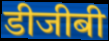
डीजीबी